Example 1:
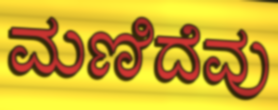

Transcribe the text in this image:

ಮಣಿದೆವು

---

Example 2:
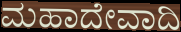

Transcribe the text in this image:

ಮಹಾದೇವಾದಿ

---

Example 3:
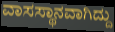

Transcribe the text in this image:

ವಾಸಸ್ಥಾನವಾಗಿದ್ದು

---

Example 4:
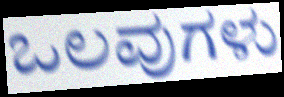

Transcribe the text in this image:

ಒಲವುಗಳು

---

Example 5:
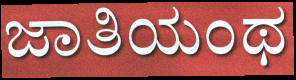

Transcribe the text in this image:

ಜಾತಿಯಂಥ